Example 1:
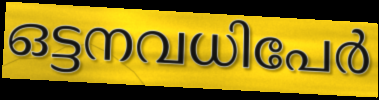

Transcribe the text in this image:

ഒട്ടനവധിപേർ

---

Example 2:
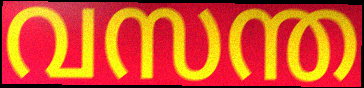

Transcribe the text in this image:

വസന്ത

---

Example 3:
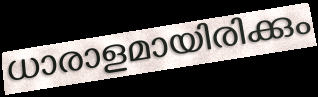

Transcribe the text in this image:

ധാരാളമായിരിക്കും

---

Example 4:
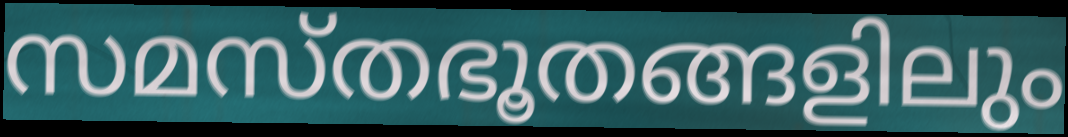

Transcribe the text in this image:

സമസ്തഭൂതങ്ങളിലും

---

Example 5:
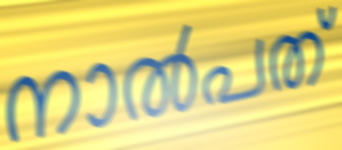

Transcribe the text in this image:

നാൽപത്